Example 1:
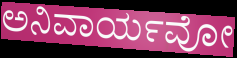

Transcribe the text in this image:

ಅನಿವಾರ್ಯವೋ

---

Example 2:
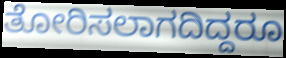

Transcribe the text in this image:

ತೋರಿಸಲಾಗದಿದ್ದರೂ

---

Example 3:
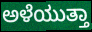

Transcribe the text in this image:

ಅಳೆಯುತ್ತಾ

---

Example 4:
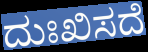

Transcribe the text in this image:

ದುಃಖಿಸದೆ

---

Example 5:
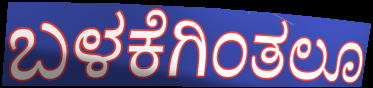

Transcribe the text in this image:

ಬಳಕೆಗಿಂತಲೂ